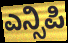
ಎನ್ಸಿಪಿ